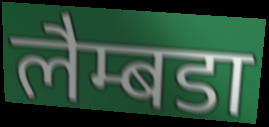
लैम्बडा